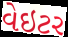
વેઇટર